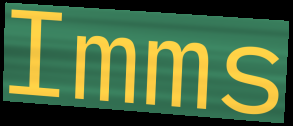
Imms